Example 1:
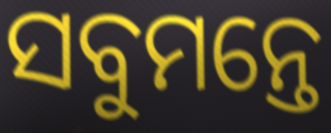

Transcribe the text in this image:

ସବୁମନ୍ତେ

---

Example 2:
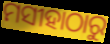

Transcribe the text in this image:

ମସୀହାଠାରୁ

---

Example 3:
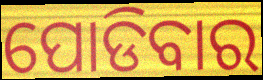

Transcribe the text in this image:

ପୋଡିବାର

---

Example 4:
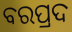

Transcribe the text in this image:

ବରପ୍ରଦ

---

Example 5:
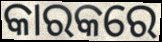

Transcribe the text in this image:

କାରକରେ